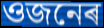
ওজনেৰ